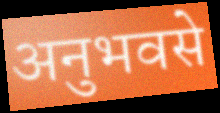
अनुभवसे